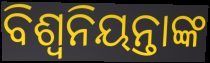
ବିଶ୍ବନିୟନ୍ତାଙ୍କ